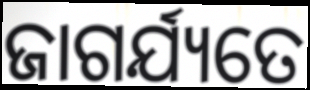
ଜାଗର୍ଯ୍ୟତେ